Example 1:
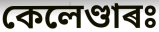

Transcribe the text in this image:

কেলেণ্ডাৰঃ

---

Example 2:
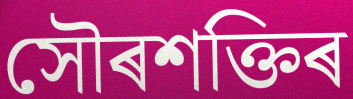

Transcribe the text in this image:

সৌৰশক্তিৰ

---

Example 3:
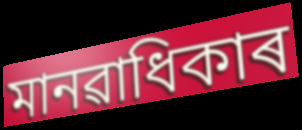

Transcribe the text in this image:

মানৱাধিকাৰ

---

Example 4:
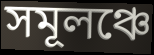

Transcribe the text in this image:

সমূলঞ্চে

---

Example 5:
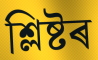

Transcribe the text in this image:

শ্লিষ্টৰ